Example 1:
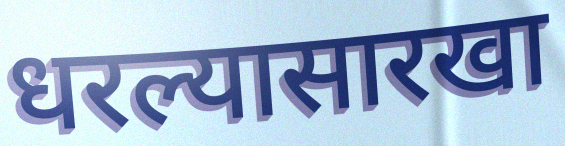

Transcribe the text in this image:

धरल्यासारखा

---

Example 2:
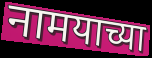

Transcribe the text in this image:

नामयाच्या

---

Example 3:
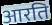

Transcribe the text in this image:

आरति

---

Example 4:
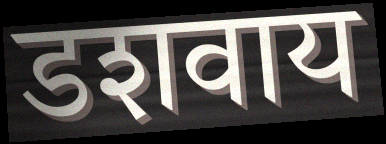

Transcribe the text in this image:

डशवाय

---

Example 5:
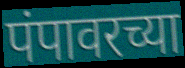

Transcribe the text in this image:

पंपावरच्या